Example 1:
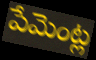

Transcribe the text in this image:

పేమెంట్ల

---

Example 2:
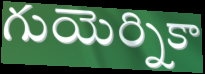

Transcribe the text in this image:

గుయెర్నికా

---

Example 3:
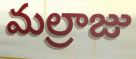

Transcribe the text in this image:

మల్రాజు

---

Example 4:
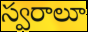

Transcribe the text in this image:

స్వరాలూ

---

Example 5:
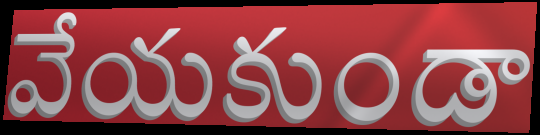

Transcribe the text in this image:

వేయకుండా